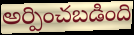
అర్పించబడింది